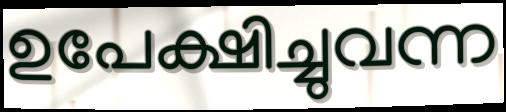
ഉപേക്ഷിച്ചുവന്ന